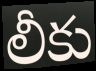
లీకు